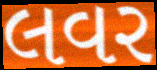
લવર